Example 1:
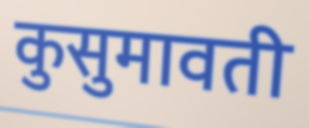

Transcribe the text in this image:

कुसुमावती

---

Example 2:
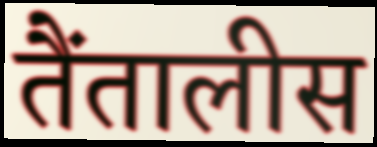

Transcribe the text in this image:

तैंतालीस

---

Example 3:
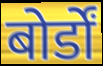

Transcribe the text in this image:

बोर्डों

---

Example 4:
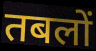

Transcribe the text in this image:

तबलों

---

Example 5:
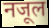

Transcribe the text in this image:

नजूल